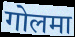
गोलमा